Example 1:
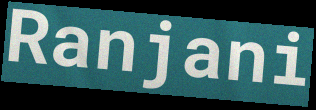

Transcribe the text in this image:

Ranjani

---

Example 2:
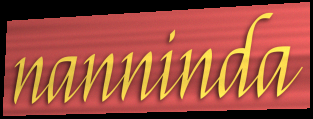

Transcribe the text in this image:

nanninda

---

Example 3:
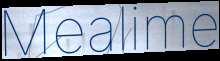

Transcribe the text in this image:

Mealime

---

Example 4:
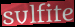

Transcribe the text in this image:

sulfite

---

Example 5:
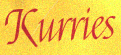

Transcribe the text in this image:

Kurries